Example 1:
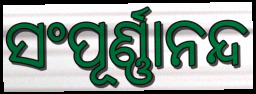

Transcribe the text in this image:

ସଂପୂର୍ଣ୍ଣାନନ୍ଦ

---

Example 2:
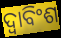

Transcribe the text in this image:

ଦ୍ଵାବିଂଶ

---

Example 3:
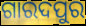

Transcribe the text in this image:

ଗାରଦପୁର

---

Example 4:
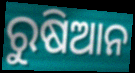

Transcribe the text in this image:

ରୁଷିଆନ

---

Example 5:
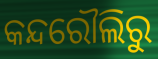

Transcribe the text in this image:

କନ୍ଦରୌଲିରୁ